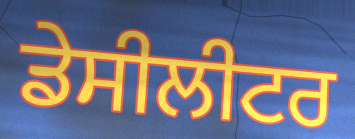
ਡੇਸੀਲੀਟਰ